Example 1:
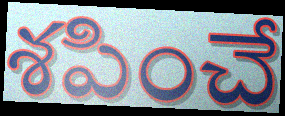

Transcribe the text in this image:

శపించే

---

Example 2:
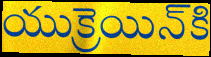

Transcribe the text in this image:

యుక్రెయిన్‌కి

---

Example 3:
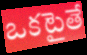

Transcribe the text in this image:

ఒకటైతే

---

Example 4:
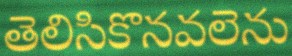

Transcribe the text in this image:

తెలిసికొనవలెను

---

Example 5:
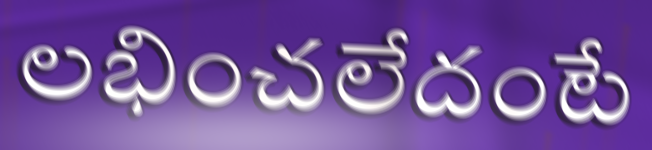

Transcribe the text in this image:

లభించలేదంటే